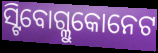
ସ୍ଟିବୋଗ୍ଲୁକୋନେଟ